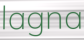
lagna